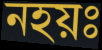
নহয়ঃ